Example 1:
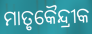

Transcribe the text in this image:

ମାତୃକୈନ୍ଦ୍ରୀକ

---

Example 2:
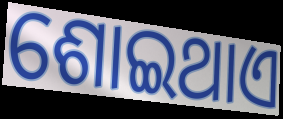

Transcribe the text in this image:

ଶୋଇଥାଏ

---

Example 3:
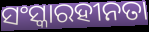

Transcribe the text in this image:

ସଂସ୍କାରହୀନତା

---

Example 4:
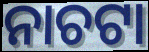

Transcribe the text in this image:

ନାଚଟା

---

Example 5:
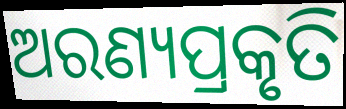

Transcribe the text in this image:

ଅରଣ୍ୟପ୍ରକୃତି